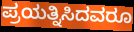
ಪ್ರಯತ್ನಿಸಿದವರೂ